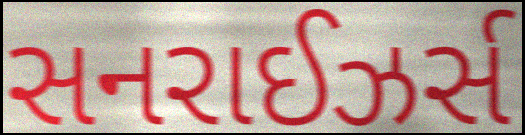
સનરાઈઝર્સ